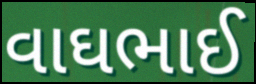
વાઘભાઈ